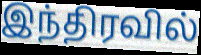
இந்திரவில்